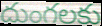
దుంగలకు